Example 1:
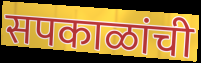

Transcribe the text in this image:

सपकाळांची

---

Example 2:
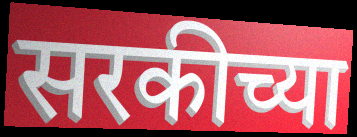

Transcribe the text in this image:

सरकीच्या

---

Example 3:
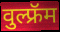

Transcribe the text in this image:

वुल्फ्रॅम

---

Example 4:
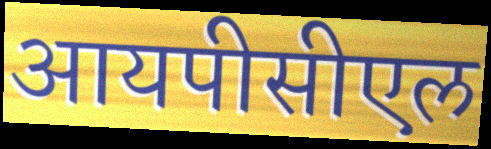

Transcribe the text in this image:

आयपीसीएल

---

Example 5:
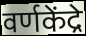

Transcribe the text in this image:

वर्णकेंद्रे